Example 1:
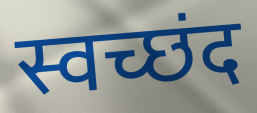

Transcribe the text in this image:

स्वच्छंद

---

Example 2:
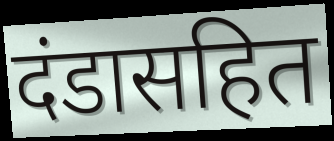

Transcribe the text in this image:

दंडासहित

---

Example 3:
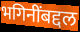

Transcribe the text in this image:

भगिनींबद्दल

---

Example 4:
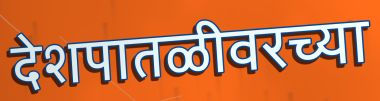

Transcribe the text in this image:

देशपातळीवरच्या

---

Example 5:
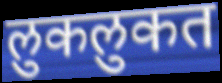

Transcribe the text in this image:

लुकलुकत